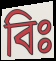
বিঃ